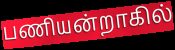
பணியன்றாகில்